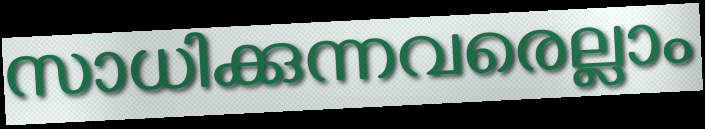
സാധിക്കുന്നവരെല്ലാം